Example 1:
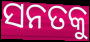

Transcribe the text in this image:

ସନତକୁ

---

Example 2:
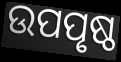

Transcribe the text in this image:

ଉପପୃଷ୍ଠ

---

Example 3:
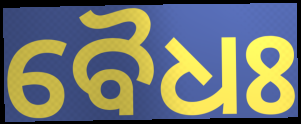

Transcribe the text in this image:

ବୈଧଃ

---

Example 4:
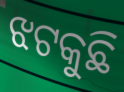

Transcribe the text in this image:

ଝଟକୁଛି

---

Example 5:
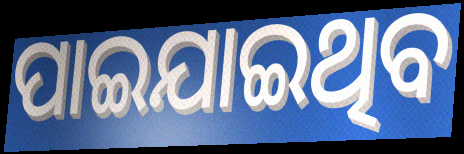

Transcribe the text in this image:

ପାଇଯାଇଥିବ